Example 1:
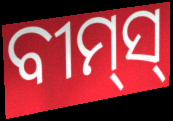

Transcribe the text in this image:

ବୀମ୍‌ସ୍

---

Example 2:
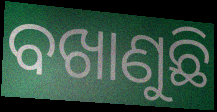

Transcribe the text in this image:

ବଖାଣୁଛି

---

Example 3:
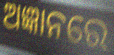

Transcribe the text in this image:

ଅଜ୍ଞାନରେ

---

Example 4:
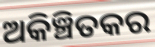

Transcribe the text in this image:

ଅକିଞ୍ଚିତକର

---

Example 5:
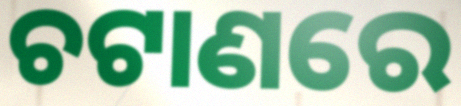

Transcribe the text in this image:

ଚଟାଣରେ